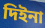
দিইনা